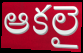
ఆకలై